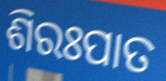
ଶିରଃପାତ